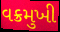
વક્રમુખી